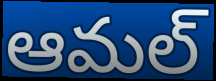
ఆమల్